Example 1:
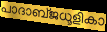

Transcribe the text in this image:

പാദാബ്ജധൂളികാ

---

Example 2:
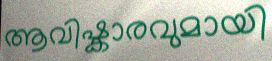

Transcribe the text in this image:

ആവിഷ്കാരവുമായി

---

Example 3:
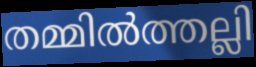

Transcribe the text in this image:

തമ്മിൽത്തല്ലി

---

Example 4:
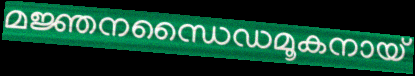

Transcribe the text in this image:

മജ്ഞനന്ധൈഡമൂകനായ്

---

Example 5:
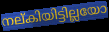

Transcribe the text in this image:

നല്കിയിട്ടില്ലയോ